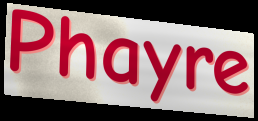
Phayre